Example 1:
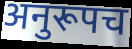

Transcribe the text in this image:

अनुरूपच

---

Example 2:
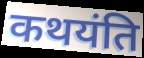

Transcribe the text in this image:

कथयंति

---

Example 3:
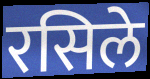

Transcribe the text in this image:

रसिले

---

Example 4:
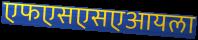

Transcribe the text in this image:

एफएसएसएआयला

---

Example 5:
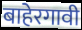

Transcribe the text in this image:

बाहेरगावी